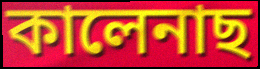
কালেনাছ